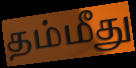
தம்மீது